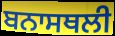
ਬਨਾਸਥਲੀ